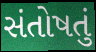
સંતોષતું